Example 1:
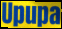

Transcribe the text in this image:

Upupa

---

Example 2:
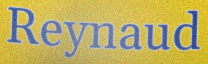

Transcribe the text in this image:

Reynaud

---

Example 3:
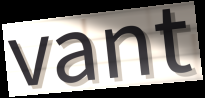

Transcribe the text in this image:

vant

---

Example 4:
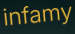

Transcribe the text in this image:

infamy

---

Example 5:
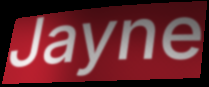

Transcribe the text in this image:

Jayne